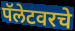
पॅलेटवरचे